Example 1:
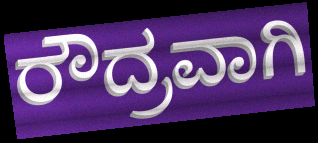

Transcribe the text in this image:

ರೌದ್ರವಾಗಿ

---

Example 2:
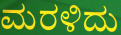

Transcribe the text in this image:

ಮರಳಿದು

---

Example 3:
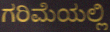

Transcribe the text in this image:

ಗರಿಮೆಯಲ್ಲಿ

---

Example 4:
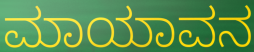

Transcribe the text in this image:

ಮಾಯಾವನ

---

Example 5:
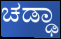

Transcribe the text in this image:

ಚಡ್ಢಾ